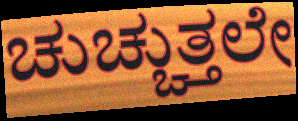
ಚುಚ್ಚುತ್ತಲೇ